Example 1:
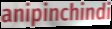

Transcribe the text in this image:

anipinchindi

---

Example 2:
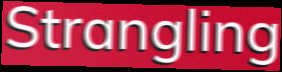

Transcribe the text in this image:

Strangling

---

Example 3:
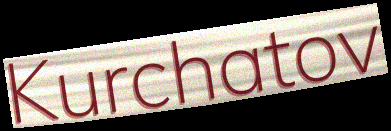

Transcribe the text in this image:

Kurchatov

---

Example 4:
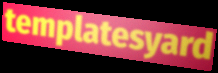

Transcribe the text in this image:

templatesyard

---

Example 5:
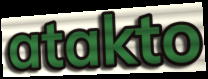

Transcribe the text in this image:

atakto